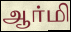
ஆர்மி